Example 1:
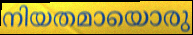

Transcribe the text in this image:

നിയതമായൊരു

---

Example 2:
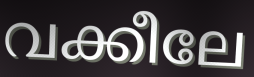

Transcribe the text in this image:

വക്കീലേ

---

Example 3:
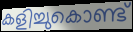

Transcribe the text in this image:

കളിച്ചുകൊണ്ട്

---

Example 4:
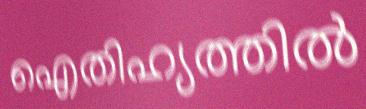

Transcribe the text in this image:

ഐതിഹ്യത്തിൽ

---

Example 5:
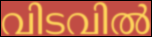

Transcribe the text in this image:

വിടവിൽ